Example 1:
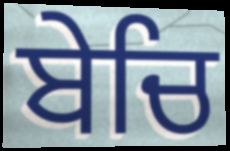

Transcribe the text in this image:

ਬੇਚਿ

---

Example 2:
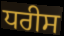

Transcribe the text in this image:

ਧਰੀਸ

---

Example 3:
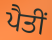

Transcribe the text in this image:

ਪੈਤੀਂ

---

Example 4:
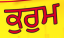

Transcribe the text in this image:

ਕੁਰੁਮ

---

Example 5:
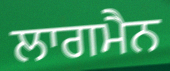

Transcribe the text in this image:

ਲਾਗਮੈਨ